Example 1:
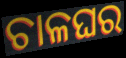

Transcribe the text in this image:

ଚାଳଘର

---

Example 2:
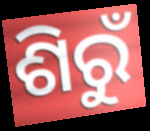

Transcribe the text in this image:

ଶିରୁଁ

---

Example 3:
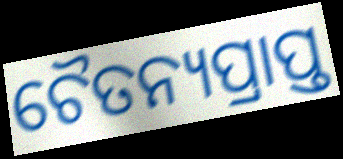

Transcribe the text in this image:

ଚୈତନ୍ୟପ୍ରାପ୍ତ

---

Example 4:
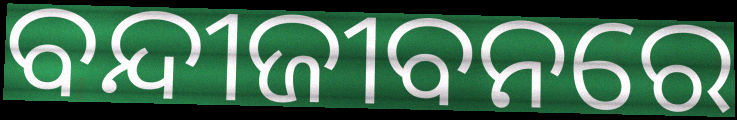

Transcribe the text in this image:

ବନ୍ଦୀଜୀବନରେ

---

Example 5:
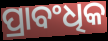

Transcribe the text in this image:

ପ୍ରାବଂଧିକ